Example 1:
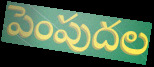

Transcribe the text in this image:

పెంపుదల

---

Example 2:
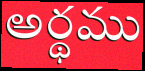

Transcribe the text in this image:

అర్థము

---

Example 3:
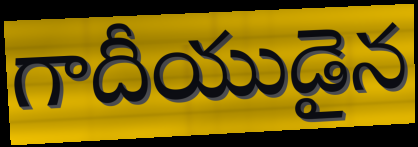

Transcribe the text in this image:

గాదీయుడైన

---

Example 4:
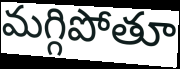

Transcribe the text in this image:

మగ్గిపోతూ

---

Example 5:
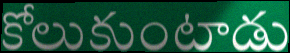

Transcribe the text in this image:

కోలుకుంటాడు